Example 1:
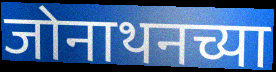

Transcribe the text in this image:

जोनाथनच्या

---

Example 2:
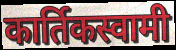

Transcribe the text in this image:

कार्तिकस्वामी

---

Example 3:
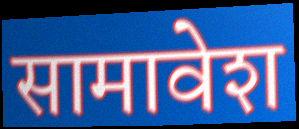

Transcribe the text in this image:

सामावेश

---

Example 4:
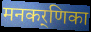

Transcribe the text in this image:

मनकर्णिका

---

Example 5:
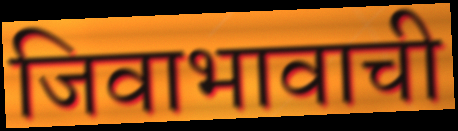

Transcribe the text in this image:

जिवाभावाची